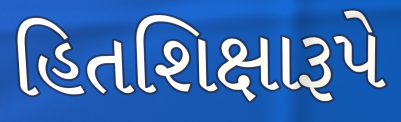
હિતશિક્ષારૂપે